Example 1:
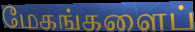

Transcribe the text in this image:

மேகங்களைப்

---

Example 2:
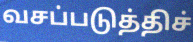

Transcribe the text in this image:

வசப்படுத்திச்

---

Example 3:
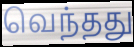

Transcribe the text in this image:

வெந்தது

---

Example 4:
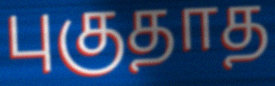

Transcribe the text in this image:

புகுதாத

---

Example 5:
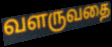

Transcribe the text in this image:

வளருவதை